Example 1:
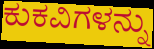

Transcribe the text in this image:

ಕುಕವಿಗಳನ್ನು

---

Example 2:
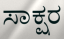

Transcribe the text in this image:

ಸಾಕ್ಷರ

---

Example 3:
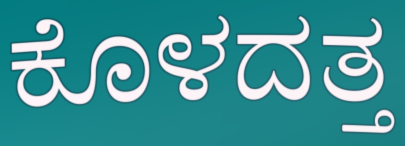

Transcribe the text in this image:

ಕೊಳದತ್ತ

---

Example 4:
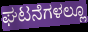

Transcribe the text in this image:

ಘಟನೆಗಳಲ್ಲೂ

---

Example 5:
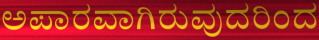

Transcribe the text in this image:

ಅಪಾರವಾಗಿರುವುದರಿಂದ